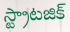
స్ట్రాటజిక్